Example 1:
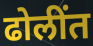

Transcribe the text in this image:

ढोलींत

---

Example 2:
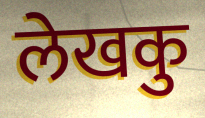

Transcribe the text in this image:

लेखकु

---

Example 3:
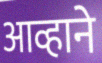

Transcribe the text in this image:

आव्हाने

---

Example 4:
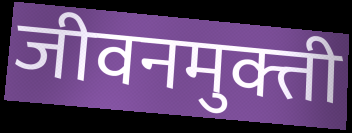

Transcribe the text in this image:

जीवनमुक्ती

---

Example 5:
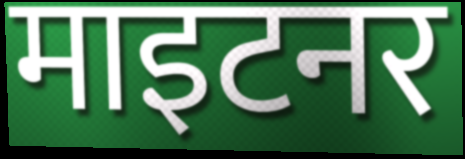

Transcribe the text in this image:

माइटनर